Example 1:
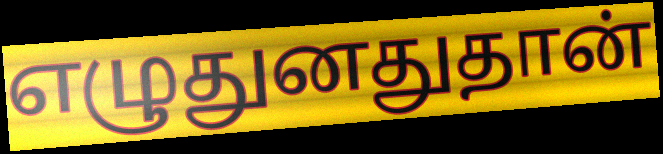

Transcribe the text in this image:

எழுதுனதுதான்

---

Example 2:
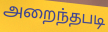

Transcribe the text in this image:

அறைந்தபடி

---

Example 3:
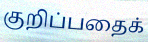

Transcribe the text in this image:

குறிப்பதைக்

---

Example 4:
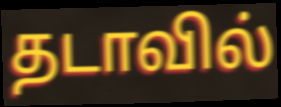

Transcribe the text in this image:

தடாவில்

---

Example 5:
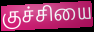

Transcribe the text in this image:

குச்சியை